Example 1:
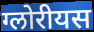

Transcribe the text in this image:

ग्लोरीयस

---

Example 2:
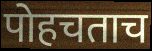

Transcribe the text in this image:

पोहचताच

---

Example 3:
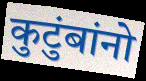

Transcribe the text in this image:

कुटुंबांनो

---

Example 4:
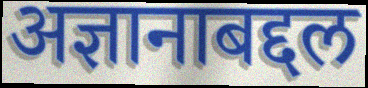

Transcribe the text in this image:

अज्ञानाबद्दल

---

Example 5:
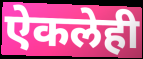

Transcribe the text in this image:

ऐकलेही